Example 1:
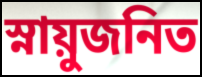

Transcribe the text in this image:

স্নায়ুজনিত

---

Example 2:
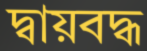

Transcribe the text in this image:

দ্বায়বদ্ধ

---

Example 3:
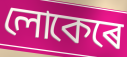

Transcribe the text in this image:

লোকেৰে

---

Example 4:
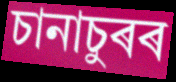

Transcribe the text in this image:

চানাচুৰৰ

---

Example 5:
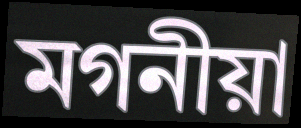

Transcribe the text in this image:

মগনীয়া